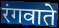
रंगवाते